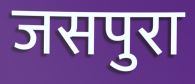
जसपुरा